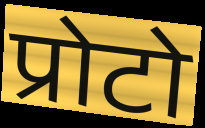
प्रोटो